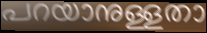
പറയാനുള്ളതാ